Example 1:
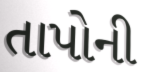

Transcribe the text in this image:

તાપોની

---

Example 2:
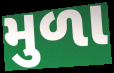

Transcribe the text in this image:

મુળા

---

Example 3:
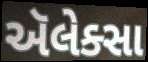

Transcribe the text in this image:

ઍલેક્સા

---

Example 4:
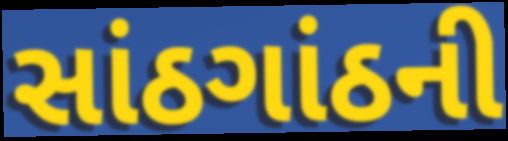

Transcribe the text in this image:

સાંઠગાંઠની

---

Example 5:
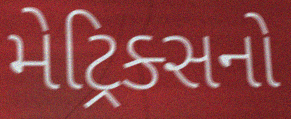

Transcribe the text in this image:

મેટ્રિક્સનો